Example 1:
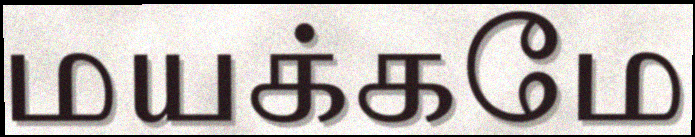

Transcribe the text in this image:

மயக்கமே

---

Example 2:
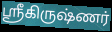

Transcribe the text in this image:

ஶ்ரீகிருஷ்ணர்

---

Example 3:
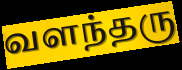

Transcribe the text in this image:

வளந்தரு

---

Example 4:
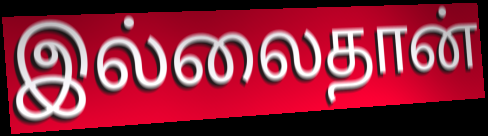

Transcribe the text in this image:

இல்லைதான்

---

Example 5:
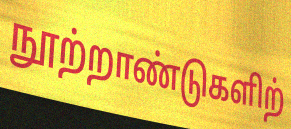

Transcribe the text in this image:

நூற்றாண்டுகளிற்